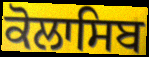
ਕੋਲਾਸਿਬ